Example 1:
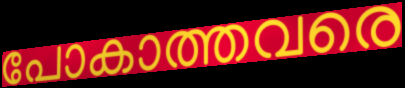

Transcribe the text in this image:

പോകാത്തവരെ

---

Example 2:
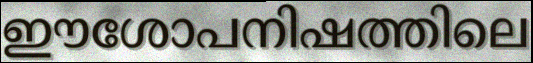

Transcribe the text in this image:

ഈശോപനിഷത്തിലെ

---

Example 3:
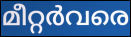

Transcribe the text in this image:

മീറ്റർവരെ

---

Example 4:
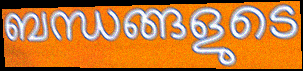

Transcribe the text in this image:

ബന്ധങ്ങളുടെ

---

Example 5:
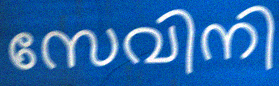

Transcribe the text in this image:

സേവിനി